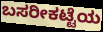
ಬಸರೀಕಟ್ಟೆಯ